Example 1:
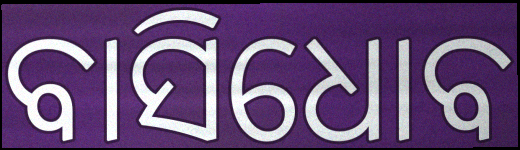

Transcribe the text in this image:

ବାସିଧୋବ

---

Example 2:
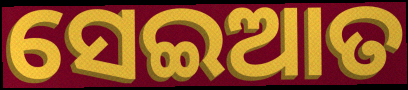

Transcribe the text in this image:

ସେଇଆତ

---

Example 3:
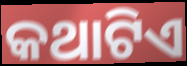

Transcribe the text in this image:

କଥାଟିଏ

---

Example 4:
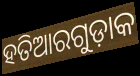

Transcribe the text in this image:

ହତିଆରଗୁଡ଼ାକ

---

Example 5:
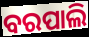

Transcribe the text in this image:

ବରପାଲି